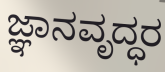
ಜ್ಞಾನವೃದ್ಧರ